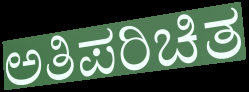
ಅತಿಪರಿಚಿತ